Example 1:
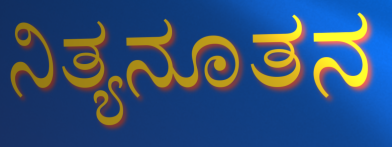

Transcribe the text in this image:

ನಿತ್ಯನೂತನ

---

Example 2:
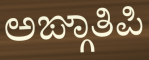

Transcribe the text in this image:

ಅಙ್ಗಾತಿಪಿ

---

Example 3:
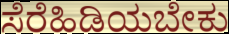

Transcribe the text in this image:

ಸೆರೆಹಿಡಿಯಬೇಕು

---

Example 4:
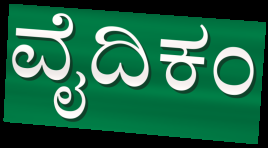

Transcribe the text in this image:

ವೈದಿಕಂ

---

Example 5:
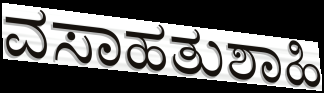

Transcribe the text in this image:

ವಸಾಹತುಶಾಹಿ